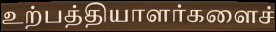
உற்பத்தியாளர்களைச்